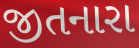
જીતનારા